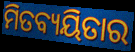
ମିତବ୍ୟୟିତାର